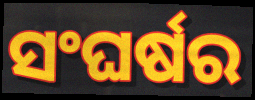
ସଂଘର୍ଷର